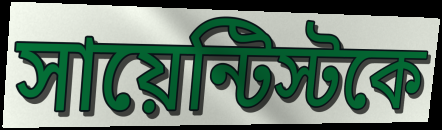
সায়েন্টিস্টকে